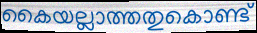
കൈയല്ലാത്തതുകൊണ്ട്